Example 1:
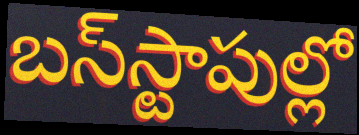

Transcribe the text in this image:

బస్‌స్టాపుల్లో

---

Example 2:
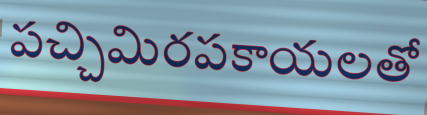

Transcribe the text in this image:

పచ్చిమిరపకాయలతో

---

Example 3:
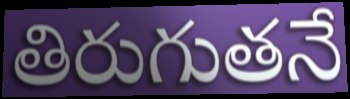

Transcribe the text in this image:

తిరుగుతనే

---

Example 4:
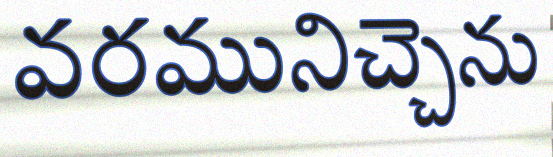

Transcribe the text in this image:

వరమునిచ్చెను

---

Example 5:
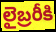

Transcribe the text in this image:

లైబ్రరీకి